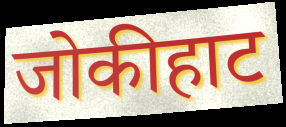
जोकीहाट